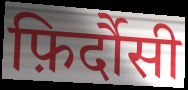
फ़िर्दौसी